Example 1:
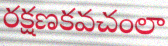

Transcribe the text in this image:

రక్షణకవచంలా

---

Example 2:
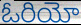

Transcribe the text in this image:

ఓరియో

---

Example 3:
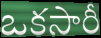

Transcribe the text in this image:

ఒకసారీ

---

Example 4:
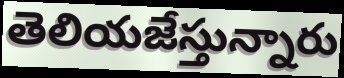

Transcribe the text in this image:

తెలియజేస్తున్నారు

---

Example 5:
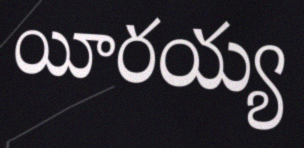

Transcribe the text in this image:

యీరయ్య